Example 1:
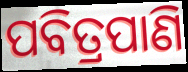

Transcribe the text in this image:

ପବିତ୍ରପାଣି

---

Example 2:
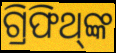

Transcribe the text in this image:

ଗ୍ରିଫିଥ୍‌ଙ୍କ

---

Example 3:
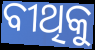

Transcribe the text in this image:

ବୀଥିକୁ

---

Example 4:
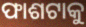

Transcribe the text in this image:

ଫାଶଟାକୁ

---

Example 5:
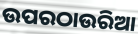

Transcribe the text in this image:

ଉପରଠାଉରିଆ